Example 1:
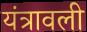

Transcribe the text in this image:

यंत्रावली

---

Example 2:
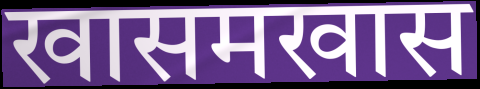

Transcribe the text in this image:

खासमखास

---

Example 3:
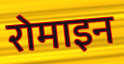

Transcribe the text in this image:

रोमाइन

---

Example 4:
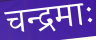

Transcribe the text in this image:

चन्द्रमाः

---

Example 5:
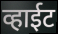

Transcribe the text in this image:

व्हाईट